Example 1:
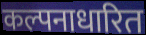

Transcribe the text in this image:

कल्पनाधारित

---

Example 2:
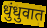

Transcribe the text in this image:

धुंधुवात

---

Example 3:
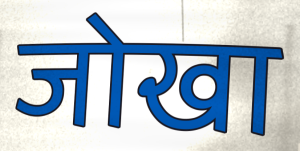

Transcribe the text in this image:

जोखा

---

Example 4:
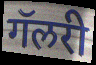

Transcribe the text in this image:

गॅलरी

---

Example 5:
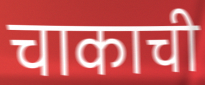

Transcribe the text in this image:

चाकाची